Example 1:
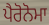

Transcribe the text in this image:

ਪੈਰੋਨੋਮਾ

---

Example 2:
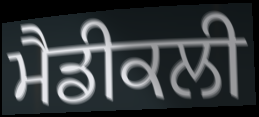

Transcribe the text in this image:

ਮੈਡੀਕਲੀ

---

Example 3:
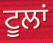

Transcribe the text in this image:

ਟੂਲਾਂ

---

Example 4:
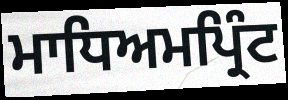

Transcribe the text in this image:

ਮਾਧਿਅਮਪ੍ਰਿੰਟ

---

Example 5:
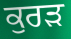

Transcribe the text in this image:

ਕੁਰੜ